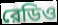
রেডিও